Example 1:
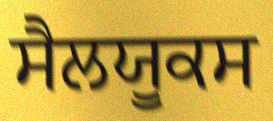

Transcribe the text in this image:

ਸੈਲਯੂਕਸ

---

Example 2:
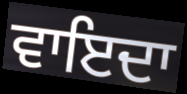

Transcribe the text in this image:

ਵਾਇਦਾ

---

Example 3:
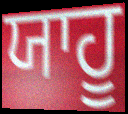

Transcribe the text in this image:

ਯਾਹੂ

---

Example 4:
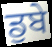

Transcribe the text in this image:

ਡੁਬੇ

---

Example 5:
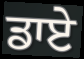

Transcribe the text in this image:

ਡਾਏ